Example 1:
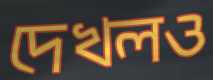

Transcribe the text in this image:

দেখলও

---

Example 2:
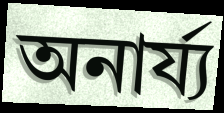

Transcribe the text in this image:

অনার্য্য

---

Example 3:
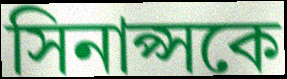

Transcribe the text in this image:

সিনাপ্সকে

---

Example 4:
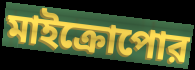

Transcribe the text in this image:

মাইক্রোপোর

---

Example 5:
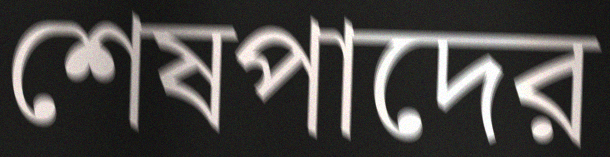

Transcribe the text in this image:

শেষপাদের